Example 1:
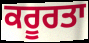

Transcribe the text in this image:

ਕਰੂਰਤਾ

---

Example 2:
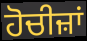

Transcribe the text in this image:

ਹੋਚੀਜ਼ਾਂ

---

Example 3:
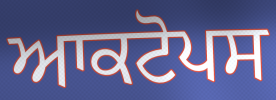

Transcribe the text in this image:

ਆਕਟੋਪਸ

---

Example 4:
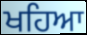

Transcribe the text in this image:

ਖਹਿਆ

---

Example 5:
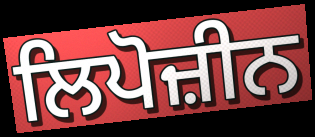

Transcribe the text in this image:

ਲਿਪੋਜ਼ੀਨ